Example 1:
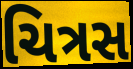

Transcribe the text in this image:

ચિત્રસ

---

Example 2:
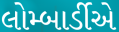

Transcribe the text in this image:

લોમ્બાર્ડીએ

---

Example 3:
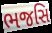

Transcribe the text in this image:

ભજસિ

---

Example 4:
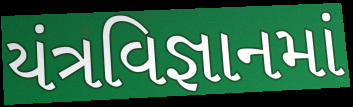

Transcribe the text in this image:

યંત્રવિજ્ઞાનમાં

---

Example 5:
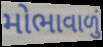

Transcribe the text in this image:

મોભાવાળું